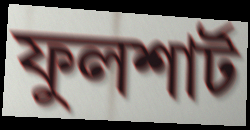
ফুলশার্ট